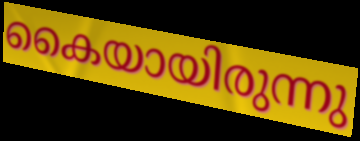
കൈയായിരുന്നു